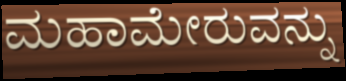
ಮಹಾಮೇರುವನ್ನು